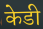
केडी